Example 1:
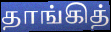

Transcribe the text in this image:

தாங்கித்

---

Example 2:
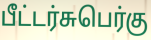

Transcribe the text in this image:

பீட்டர்சுபெர்கு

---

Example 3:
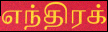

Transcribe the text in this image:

எந்திரக்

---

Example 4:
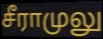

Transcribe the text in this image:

சீராமுலு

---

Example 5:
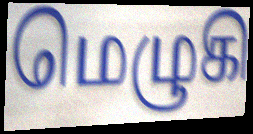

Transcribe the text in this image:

மெழுகி